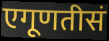
एगूणतीसं